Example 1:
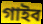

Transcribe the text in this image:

গাইব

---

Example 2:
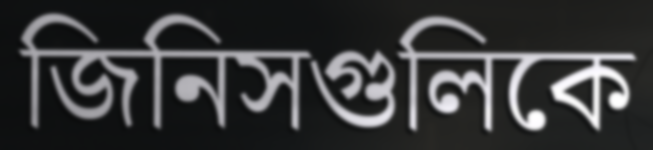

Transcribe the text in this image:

জিনিসগুলিকে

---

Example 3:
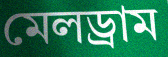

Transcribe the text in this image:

মেলড্রাম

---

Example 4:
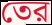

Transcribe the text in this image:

তের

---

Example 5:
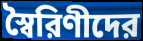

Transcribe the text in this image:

স্বৈরিণীদের